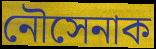
নৌসেনাক